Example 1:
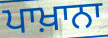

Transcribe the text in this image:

ਪਾਖ਼ਾਨਾ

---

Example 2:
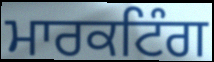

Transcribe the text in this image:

ਮਾਰਕਟਿੰਗ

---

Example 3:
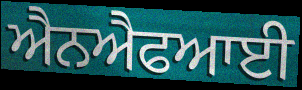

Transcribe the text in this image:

ਐਨਐਫਆਈ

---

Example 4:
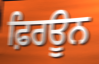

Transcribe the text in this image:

ਫ਼ਿਰਊਨ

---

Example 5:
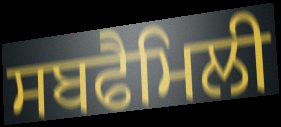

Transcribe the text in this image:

ਸਬਫੈਮਿਲੀ